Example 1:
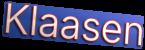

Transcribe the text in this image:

Klaasen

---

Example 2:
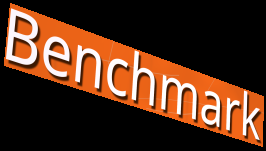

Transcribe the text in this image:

Benchmark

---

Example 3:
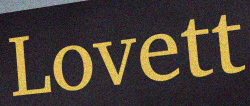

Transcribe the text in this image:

Lovett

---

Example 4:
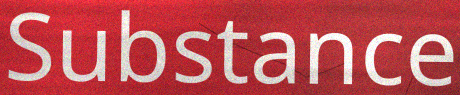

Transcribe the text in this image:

Substance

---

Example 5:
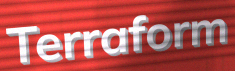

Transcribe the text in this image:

Terraform